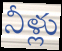
నీళ్లు